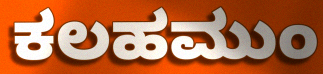
ಕಲಹಮುಂ